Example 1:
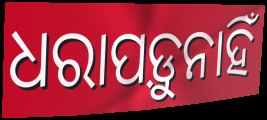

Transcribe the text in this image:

ଧରାପଡ଼ୁନାହିଁ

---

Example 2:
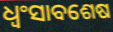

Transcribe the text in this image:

ଧ୍ଵଂସାବଶେଷ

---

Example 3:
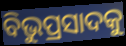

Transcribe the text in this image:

ବିଭୁପ୍ରସାଦକୁ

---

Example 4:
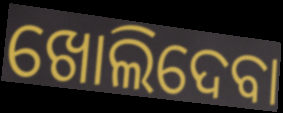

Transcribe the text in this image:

ଖୋଲିଦେବା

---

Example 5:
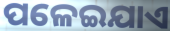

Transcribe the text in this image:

ପଳେଇଯାଏ